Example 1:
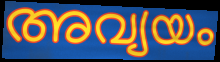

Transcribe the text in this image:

അവ്യയം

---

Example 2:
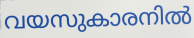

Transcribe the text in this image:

വയസുകാരനിൽ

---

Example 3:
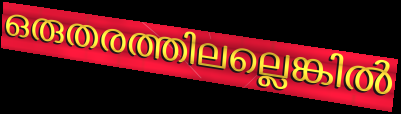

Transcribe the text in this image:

ഒരുതരത്തിലല്ലെങ്കിൽ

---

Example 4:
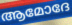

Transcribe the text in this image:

ആമോദേ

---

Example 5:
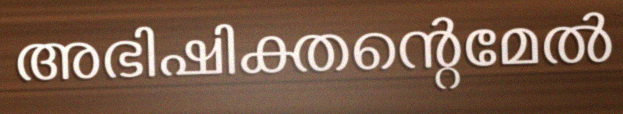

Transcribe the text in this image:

അഭിഷിക്തന്റെമേൽ